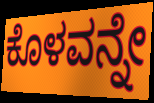
ಕೊಳವನ್ನೇ